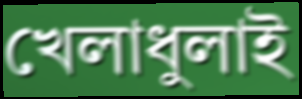
খেলাধুলাই